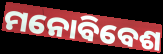
ମନୋବିବେଶ